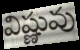
విష్ణువు